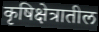
कृषिक्षेत्रातील